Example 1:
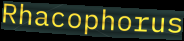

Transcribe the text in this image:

Rhacophorus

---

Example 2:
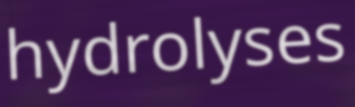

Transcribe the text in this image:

hydrolyses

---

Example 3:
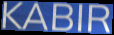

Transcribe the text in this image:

KABIR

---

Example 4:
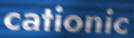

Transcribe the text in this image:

cationic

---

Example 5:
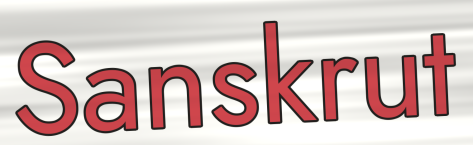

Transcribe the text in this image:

Sanskrut